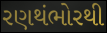
રણથંભોરથી